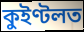
কুইণ্টলত